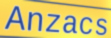
Anzacs